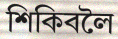
শিকিবলৈ